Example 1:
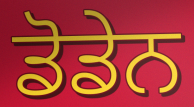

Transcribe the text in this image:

ਡੋਡੇਨ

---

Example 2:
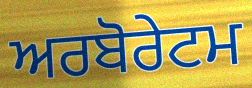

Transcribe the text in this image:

ਅਰਬੋਰੇਟਮ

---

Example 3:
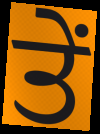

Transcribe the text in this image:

ਤੇੰ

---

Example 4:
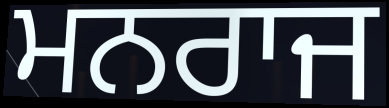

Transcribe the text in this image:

ਮਨਰਾਜ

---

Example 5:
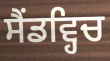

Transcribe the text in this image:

ਸੈਂਡਵ੍ਹਿਚ